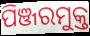
ପିଞ୍ଜରମୁକ୍ତ